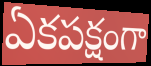
ఏకపక్షంగా